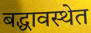
बद्धावस्थेत